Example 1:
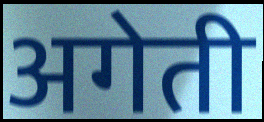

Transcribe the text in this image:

अगेती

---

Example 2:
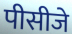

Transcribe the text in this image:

पीसीजे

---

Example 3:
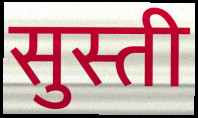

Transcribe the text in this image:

सुस्ती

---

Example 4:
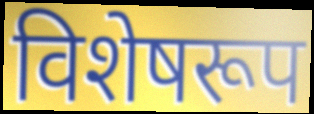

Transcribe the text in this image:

विशेषरूप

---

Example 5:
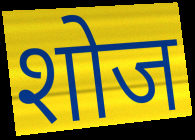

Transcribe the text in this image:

शोज